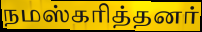
நமஸ்கரித்தனர்